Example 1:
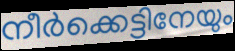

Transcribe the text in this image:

നീർക്കെട്ടിനേയും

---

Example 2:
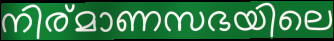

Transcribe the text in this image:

നിര്മാണസഭയിലെ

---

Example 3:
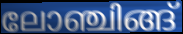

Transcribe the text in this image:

ലോഞ്ചിങ്ങ്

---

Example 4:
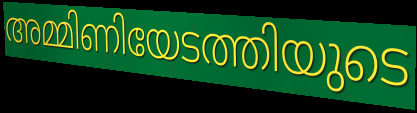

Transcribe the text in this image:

അമ്മിണിയേടത്തിയുടെ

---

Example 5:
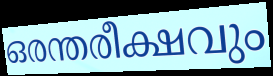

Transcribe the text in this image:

ഒരന്തരീക്ഷവും